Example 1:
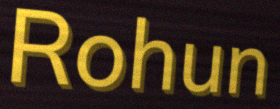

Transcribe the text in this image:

Rohun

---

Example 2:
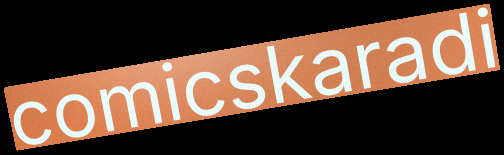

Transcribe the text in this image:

comicskaradi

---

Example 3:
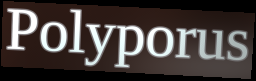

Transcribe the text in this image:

Polyporus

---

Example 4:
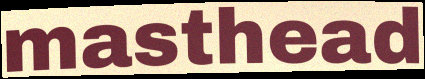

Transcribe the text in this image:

masthead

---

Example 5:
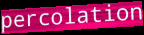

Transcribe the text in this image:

percolation